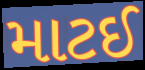
માટઈ